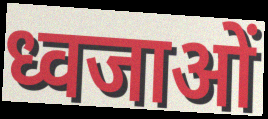
ध्वजाओं